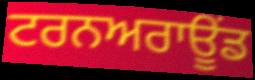
ਟਰਨਅਰਾਊਂਡ